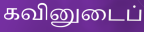
கவினுடைப்